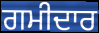
ਗਮੀਦਾਰ